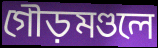
গৌড়মণ্ডলে